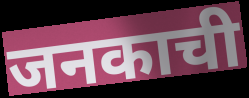
जनकाची